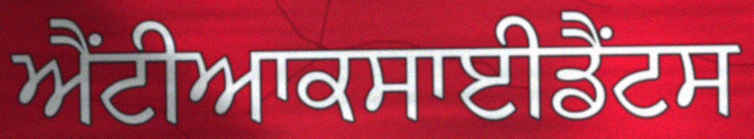
ਐਂਟੀਆਕਸਾਈਡੈਂਟਸ